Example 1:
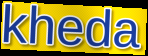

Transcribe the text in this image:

kheda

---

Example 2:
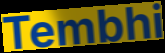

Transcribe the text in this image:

Tembhi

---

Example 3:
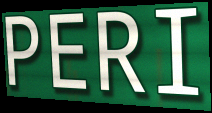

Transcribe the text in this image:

PERI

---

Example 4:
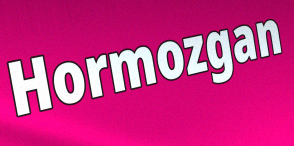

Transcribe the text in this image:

Hormozgan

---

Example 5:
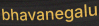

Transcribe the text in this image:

bhavanegalu